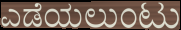
ಎಡೆಯಲುಂಟು